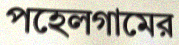
পহেলগামের